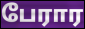
பேரார